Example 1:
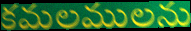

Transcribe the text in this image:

కమలములను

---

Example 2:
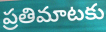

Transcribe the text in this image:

ప్రతిమాటకు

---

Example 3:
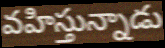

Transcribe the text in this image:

వహిస్తున్నాడు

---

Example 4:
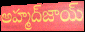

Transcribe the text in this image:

అహ్మద్‌జాయ్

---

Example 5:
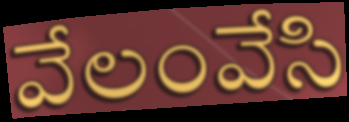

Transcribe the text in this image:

వేలంవేసి